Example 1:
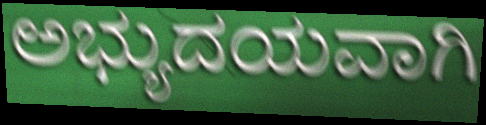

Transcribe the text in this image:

ಅಭ್ಯುದಯವಾಗಿ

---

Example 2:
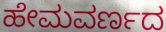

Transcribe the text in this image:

ಹೇಮವರ್ಣದ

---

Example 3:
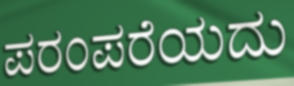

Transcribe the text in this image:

ಪರಂಪರೆಯದು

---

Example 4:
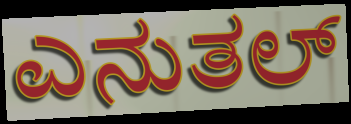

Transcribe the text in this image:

ಎನುತಲ್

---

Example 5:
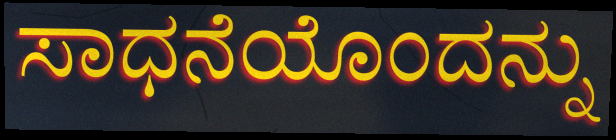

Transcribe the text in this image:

ಸಾಧನೆಯೊಂದನ್ನು